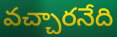
వచ్చారనేది